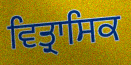
ਵਿਤ੍ਰਾਸਿਕ